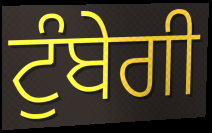
ਟੁੰਬੇਗੀ